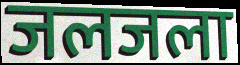
जलजला